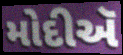
મોદીઍ